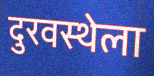
दुरवस्थेला